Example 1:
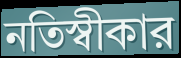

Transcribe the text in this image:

নতিস্বীকার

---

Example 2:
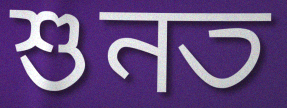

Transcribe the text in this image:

শুনত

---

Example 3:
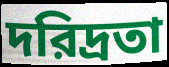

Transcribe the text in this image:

দরিদ্রতা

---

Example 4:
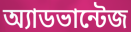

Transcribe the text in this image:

অ্যাডভান্টেজ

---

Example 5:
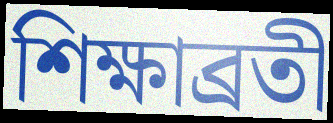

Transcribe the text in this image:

শিক্ষাব্রতী